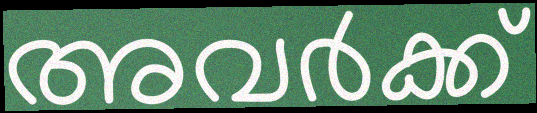
അവർക്ക്